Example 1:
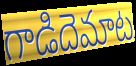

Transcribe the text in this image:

గాడిదెమాట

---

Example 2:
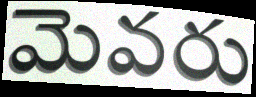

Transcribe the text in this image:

మెవరు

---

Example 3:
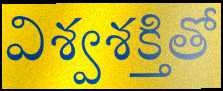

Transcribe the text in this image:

విశ్వశక్తితో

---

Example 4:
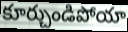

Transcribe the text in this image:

కూర్చుండిపోయా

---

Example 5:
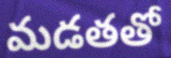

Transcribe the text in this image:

మడతతో